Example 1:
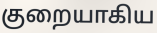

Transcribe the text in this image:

குறையாகிய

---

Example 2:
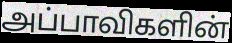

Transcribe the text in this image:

அப்பாவிகளின்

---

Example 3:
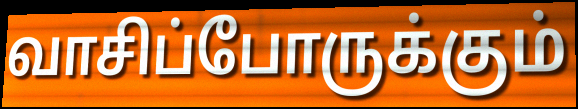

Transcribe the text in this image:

வாசிப்போருக்கும்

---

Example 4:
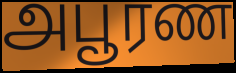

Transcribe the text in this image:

அபூரண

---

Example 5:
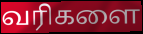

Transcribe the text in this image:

வரிகளை